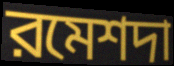
রমেশদা